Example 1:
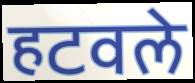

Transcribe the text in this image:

हटवले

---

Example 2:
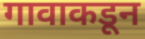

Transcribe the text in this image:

गावाकडून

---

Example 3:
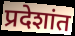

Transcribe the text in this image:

प्रदेशांत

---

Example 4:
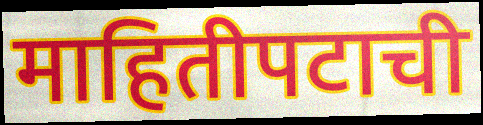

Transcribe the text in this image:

माहितीपटाची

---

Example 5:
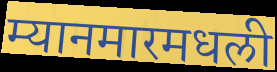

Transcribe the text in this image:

म्यानमारमधली